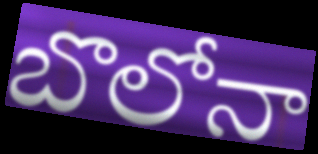
బొలోనా